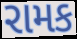
રામક